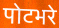
पोटभरे